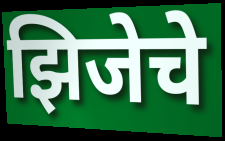
झिजेचे